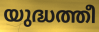
യുദ്ധത്തീ